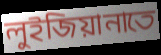
লুইজিয়ানাতে